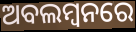
ଅବଲମ୍ବନରେ